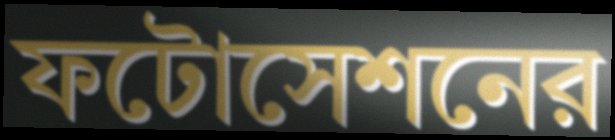
ফটোসেশনের